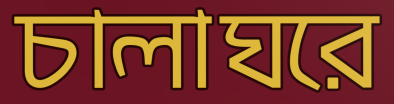
চালাঘরে